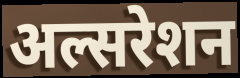
अल्सरेशन